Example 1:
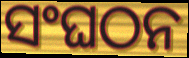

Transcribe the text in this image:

ସଂଘଠନ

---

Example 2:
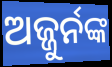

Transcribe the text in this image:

ଅଜ୍ଜୁର୍ନଙ୍କ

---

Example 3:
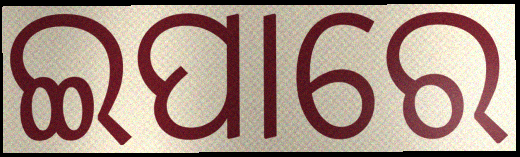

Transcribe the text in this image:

ଇପାରେ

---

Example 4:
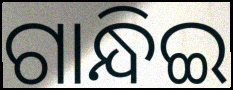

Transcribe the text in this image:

ଗାନ୍ଧିଇ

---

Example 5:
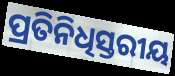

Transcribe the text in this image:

ପ୍ରତିନିଧିସ୍ତରୀୟ